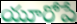
యూరోపే